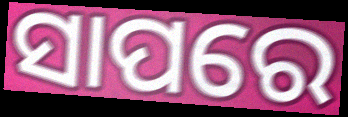
ସାପରେ